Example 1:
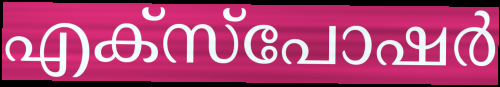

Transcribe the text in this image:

എക്സ്പോഷർ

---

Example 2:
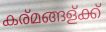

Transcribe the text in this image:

കര്മങ്ങള്ക്ക്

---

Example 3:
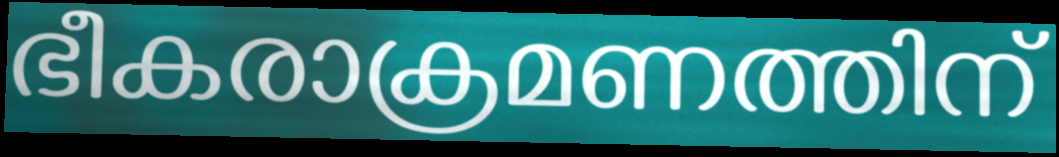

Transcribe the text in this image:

ഭീകരാക്രമണത്തിന്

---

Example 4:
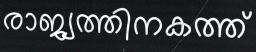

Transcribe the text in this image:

രാജ്യത്തിനകത്ത്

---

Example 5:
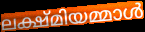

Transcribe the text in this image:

ലക്ഷ്മിയമ്മാൾ